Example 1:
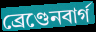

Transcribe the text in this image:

ব্ৰেণ্ডেনবাৰ্গ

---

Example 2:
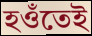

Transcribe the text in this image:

হওঁতেই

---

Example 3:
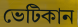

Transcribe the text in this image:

ভেটিকান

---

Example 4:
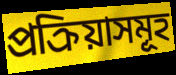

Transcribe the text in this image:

প্ৰক্ৰিয়াসমূহ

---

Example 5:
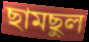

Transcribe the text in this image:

ছামছুল